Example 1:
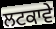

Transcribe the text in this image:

ਲਟਕਾਵੇ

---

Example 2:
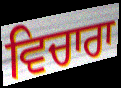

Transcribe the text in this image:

ਵਿਚਾਰਾ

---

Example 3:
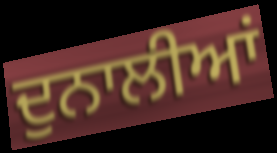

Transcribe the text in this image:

ਦੁਨਾਲੀਆਂ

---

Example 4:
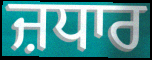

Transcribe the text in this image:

ਜ਼ਧਾਰ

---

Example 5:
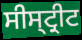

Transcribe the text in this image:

ਸੀਸ੍ਟ੍ਰੀਟ